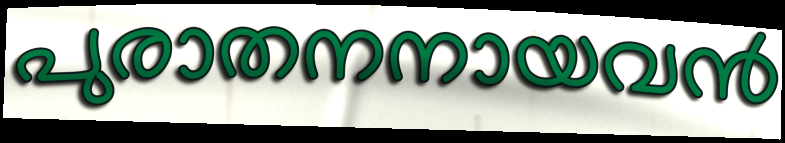
പുരാതനനായവൻ